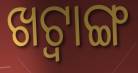
ଖଟ୍ଵାଙ୍ଗ